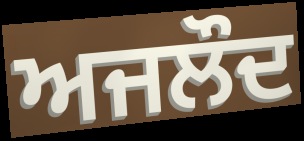
ਅਜਲੌਦ